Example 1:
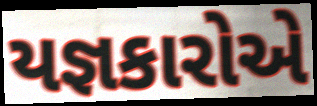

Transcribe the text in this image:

યજ્ઞકારોએ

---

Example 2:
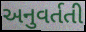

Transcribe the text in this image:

અનુવર્તતી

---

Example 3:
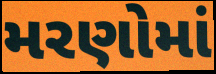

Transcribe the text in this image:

મરણોમાં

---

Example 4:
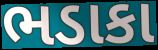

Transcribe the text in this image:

ભડાકા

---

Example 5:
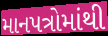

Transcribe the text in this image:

માનપત્રોમાંથી